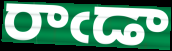
రాఁడా